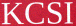
KCSI